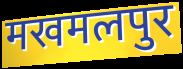
मखमलपुर